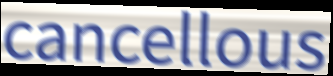
cancellous